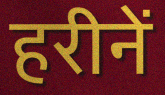
हरीनें